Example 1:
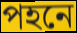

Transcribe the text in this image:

পহনে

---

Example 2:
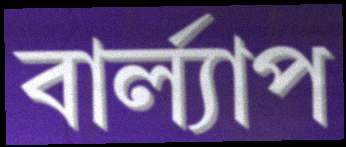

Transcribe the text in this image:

বার্ল্যাপ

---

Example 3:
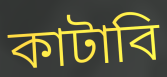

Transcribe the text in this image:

কাটাবি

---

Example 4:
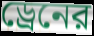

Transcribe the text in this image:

ড্রেনের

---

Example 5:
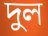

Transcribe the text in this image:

দুল